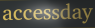
accessday